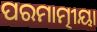
ପରମାତ୍ମୀୟା